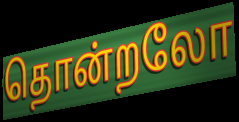
தொன்றலோ